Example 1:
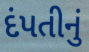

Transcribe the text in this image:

દંપતીનું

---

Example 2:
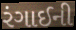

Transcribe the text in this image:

રંગાઈની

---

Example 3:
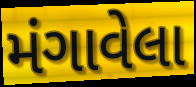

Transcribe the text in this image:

મંગાવેલા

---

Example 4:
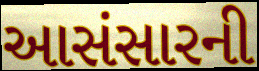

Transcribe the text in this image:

આસંસારની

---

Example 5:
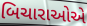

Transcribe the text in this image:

બિચારાઓએ